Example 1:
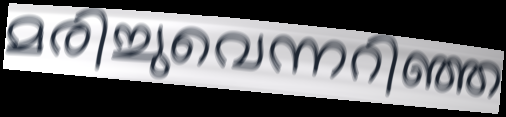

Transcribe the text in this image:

മരിച്ചുവെന്നറിഞ്ഞ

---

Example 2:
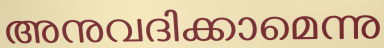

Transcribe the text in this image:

അനുവദിക്കാമെന്നു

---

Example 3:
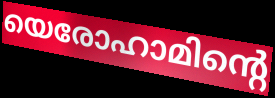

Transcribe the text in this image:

യെരോഹാമിന്റെ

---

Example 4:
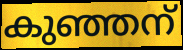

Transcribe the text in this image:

കുഞ്ഞന്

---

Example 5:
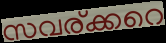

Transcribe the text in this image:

സവര്ക്കറെ